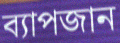
ব্যাপজান